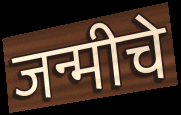
जन्मीचे